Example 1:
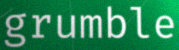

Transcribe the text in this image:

grumble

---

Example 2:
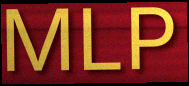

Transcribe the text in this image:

MLP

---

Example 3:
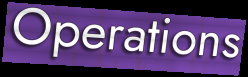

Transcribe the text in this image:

Operations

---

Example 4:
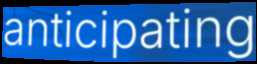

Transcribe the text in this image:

anticipating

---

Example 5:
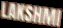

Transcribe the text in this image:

LAKSHMI